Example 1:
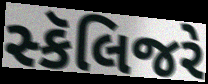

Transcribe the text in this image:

સ્કૅલિજરે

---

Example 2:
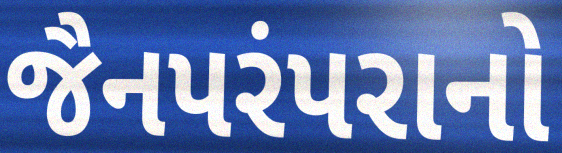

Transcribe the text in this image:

જૈનપરંપરાનો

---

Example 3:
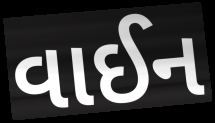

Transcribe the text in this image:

વાઈન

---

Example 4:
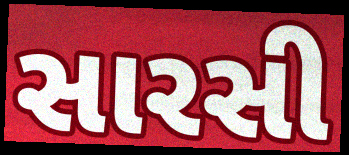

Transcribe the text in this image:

સારસી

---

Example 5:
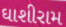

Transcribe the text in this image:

ઘાશીરામ